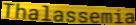
Thalassemia